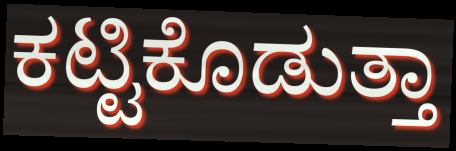
ಕಟ್ಟಿಕೊಡುತ್ತಾ